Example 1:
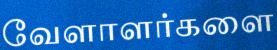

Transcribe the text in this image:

வேளாளர்களை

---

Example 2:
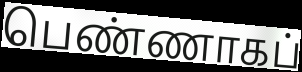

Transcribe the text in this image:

பெண்ணாகப்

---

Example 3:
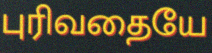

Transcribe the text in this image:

புரிவதையே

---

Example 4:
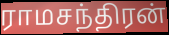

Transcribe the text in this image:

ராமசந்திரன்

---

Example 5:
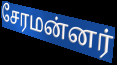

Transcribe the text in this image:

சேரமன்னர்